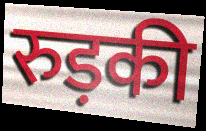
रुड़की